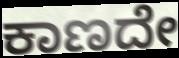
ಕಾಣದೇ